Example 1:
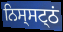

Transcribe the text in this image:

ਨਿਸ੍ਸਟ੍ਠਂ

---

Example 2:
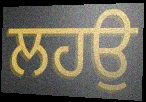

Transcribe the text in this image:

ਲਹਉ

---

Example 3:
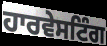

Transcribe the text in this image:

ਹਾਰਵੇਸਟਿੰਗ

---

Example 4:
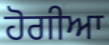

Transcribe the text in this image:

ਹੋਗੀਆ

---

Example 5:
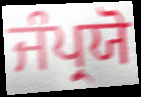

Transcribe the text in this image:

ਜੰਪ੍ਰਯੋ